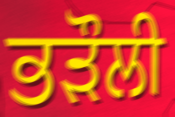
ਭੜੌਲੀ